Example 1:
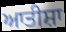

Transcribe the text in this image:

ਆਤੀਸ਼ਾ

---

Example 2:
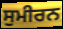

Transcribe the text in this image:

ਸੁਮੀਰਨ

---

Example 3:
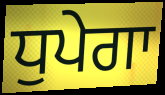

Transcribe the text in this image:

ਧੁਪੇਗਾ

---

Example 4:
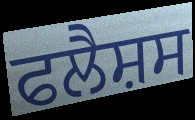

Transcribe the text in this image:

ਫਲੈਸ਼ਸ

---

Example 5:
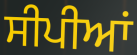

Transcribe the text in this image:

ਸੀਪੀਆਂ